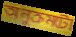
অনুক্ৰমটো